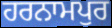
ਹਰਨਾਮਪੁਰ